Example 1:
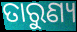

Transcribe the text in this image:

ତାରୁଣ୍ୟ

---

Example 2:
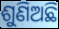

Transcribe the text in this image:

ଶୁଣିଅଛି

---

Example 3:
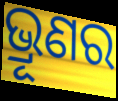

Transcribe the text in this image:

ଭ୍ରୂଣର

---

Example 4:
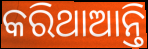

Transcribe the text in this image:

କରିଥାଆନ୍ତି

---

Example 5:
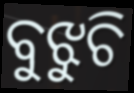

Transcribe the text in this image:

ବୁଝୁଚି